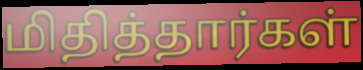
மிதித்தார்கள்